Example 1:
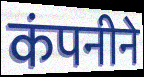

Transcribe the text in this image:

कंपनीने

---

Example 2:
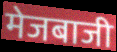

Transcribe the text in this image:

मेजबाजी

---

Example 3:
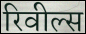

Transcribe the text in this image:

रिवील्स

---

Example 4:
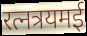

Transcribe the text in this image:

रत्नत्रयमई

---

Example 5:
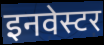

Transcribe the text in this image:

इनवेस्टर